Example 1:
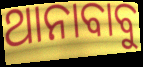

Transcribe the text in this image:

ଥାନାବାବୁ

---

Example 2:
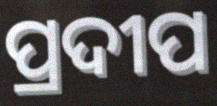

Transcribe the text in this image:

ପ୍ରଦୀପ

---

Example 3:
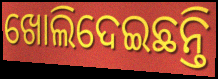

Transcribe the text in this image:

ଖୋଲିଦେଇଛନ୍ତି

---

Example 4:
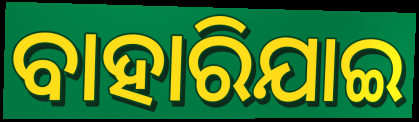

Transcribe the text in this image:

ବାହାରିଯାଇ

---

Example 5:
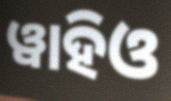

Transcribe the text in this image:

ୱାହିଓ